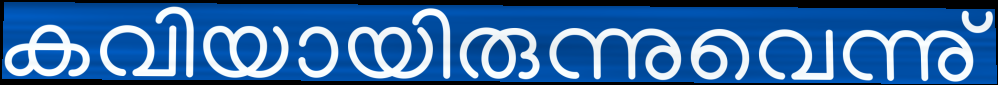
കവിയായിരുന്നുവെന്നു്